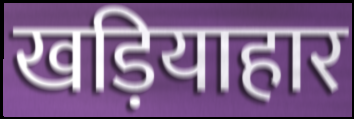
खड़ियाहार